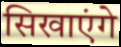
सिखाएंगे